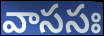
వాససః